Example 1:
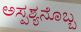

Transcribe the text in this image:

ಅಸ್ಪಶ್ಯನೊಬ್ಬ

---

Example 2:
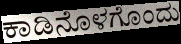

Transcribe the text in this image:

ಕಾಡಿನೊಳಗೊಂದು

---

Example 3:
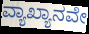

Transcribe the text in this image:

ವ್ಯಾಖ್ಯಾನವೇ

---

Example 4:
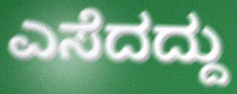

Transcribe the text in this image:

ಎಸೆದದ್ದು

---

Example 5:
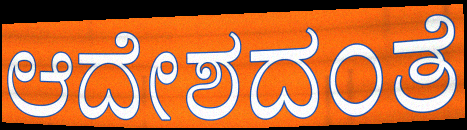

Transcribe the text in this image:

ಆದೇಶದಂತೆ